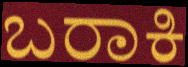
ಬರಾಕಿ